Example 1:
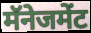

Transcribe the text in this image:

मॅनेजमेंट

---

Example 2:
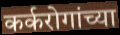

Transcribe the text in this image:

कर्करोगांच्या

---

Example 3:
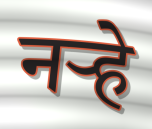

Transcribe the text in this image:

नऱ्हे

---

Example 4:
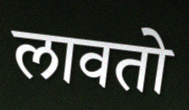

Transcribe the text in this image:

लावतो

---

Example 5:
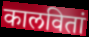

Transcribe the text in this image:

कालवितां